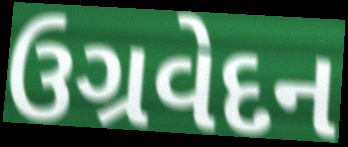
ઉગ્રવેદન